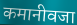
कमानीवजा